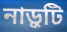
নাড়ুটি